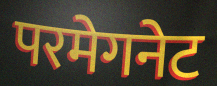
परमेगनेट